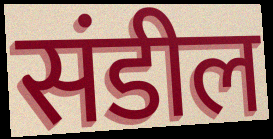
संडील